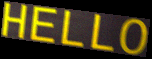
HELLO